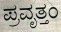
ಪ್ರವೃತ್ತಂ